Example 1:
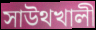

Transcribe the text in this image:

সাউথখালী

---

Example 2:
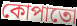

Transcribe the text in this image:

কোপাতো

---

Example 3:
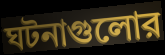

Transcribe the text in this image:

ঘটনাগুলোর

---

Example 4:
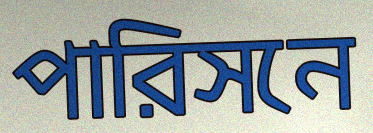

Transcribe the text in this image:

পারিসনে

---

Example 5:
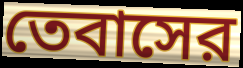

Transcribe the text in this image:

তেবাসের